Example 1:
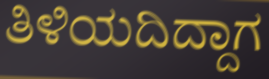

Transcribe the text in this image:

ತಿಳಿಯದಿದ್ದಾಗ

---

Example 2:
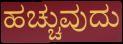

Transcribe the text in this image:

ಹಚ್ಚುವುದು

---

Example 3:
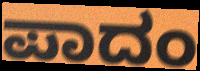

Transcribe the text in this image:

ಪಾದಂ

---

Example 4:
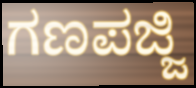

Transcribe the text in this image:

ಗಣಪಜ್ಜಿ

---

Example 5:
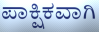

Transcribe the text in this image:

ಪಾಕ್ಷಿಕವಾಗಿ